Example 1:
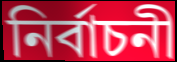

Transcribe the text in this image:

নিৰ্বাচনী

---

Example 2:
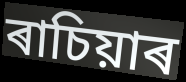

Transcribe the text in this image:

ৰাচিয়াৰ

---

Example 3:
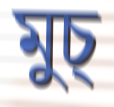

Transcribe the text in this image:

মুচ্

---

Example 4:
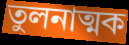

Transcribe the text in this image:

তুলনাত্মক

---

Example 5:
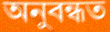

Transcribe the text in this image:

অনুবন্ধত